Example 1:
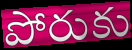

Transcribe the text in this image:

పోరుకు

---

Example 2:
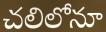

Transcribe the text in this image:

చలిలోనూ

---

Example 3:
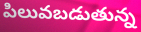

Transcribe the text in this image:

పిలువబడుతున్న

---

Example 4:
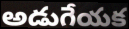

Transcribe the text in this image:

అడుగేయక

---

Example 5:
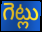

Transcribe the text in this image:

గెట్లు